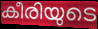
കീരിയുടെ